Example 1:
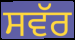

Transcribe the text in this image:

ਸਵੱਰ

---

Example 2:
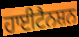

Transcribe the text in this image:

ਹਾਈਟੈਨਸ਼ਨ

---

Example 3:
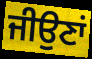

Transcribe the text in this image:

ਜੀਉਣਾਂ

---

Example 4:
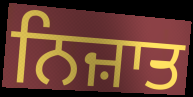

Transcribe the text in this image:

ਨਿਜ਼ਾਤ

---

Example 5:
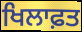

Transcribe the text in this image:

ਖਿਲਾਫ਼ਤ